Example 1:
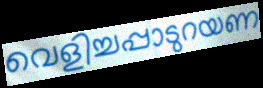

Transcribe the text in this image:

വെളിച്ചപ്പാടുറയണ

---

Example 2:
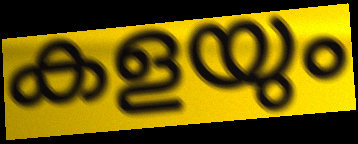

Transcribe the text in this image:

കളയും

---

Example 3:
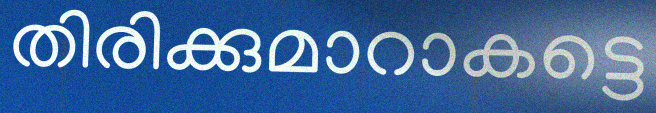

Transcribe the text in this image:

തിരിക്കുമാറാകട്ടെ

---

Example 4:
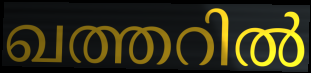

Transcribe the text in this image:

ഖത്തറിൽ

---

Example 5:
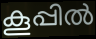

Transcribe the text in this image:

കൂപ്പിൽ